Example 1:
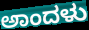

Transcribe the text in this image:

ಅಾಂದಳು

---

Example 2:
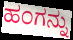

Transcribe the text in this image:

ಹಂಗನ್ನು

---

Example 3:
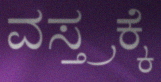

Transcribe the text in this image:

ವಸ್ತ್ರಕ್ಕೆ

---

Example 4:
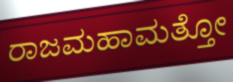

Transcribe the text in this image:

ರಾಜಮಹಾಮತ್ತೋ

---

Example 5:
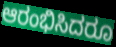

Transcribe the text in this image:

ಆರಂಭಿಸಿದರೂ